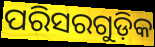
ପରିସରଗୁଡ଼ିକ